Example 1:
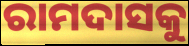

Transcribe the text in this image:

ରାମଦାସକୁ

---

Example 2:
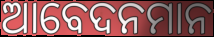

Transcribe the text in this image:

ଆବେଦନମାନ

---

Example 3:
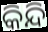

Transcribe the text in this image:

କିନ୍ଦି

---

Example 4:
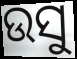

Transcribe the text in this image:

ଉସୁ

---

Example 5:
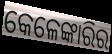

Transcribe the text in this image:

କେଳେଙ୍କାରିର